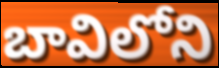
బావిలోని